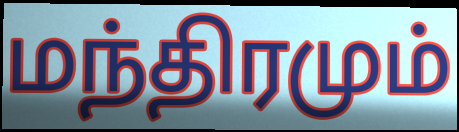
மந்திரமும்